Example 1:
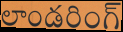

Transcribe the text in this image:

లాండరింగ్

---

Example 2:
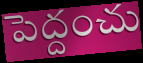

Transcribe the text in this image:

పెద్దంచు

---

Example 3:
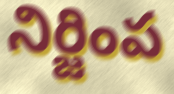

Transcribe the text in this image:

నిర్జింప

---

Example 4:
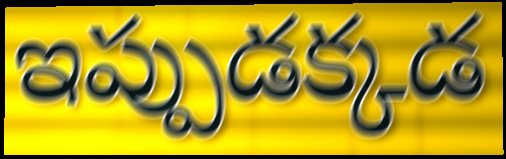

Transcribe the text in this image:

ఇప్పుడక్కడ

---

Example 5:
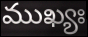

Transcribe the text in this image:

ముఖ్యః